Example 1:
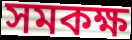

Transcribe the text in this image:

সমকক্ষ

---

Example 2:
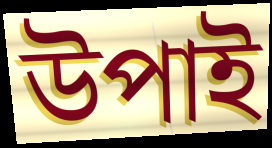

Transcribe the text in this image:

উপাই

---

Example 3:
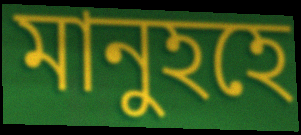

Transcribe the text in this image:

মানুহহে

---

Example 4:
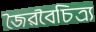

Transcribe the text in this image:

জৈৱবৈচিত্ৰ্য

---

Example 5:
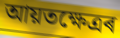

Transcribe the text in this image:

আয়তক্ষেত্ৰৰ